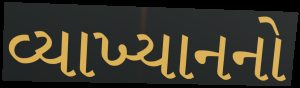
વ્યાખ્યાનનો